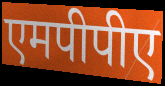
एमपीपीए